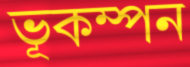
ভূকম্পন